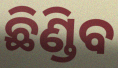
ଛିଣ୍ଡିବ